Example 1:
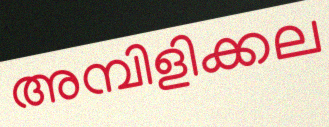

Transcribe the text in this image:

അമ്പിളിക്കല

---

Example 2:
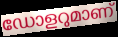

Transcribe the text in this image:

ഡോളറുമാണ്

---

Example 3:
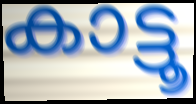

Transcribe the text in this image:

കാട്ടൂ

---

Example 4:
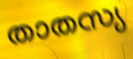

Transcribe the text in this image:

താതസ്യ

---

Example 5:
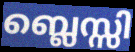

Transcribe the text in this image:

ബ്ലെസ്സി